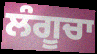
ਲੰਗੂਚਾ